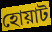
হোয়াট